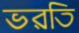
ভৱতি